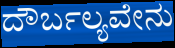
ದೌರ್ಬಲ್ಯವೇನು